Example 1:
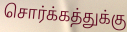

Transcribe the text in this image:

சொர்க்கத்துக்கு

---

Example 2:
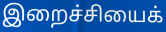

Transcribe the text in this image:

இறைச்சியைக்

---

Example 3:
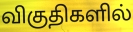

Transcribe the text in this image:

விகுதிகளில்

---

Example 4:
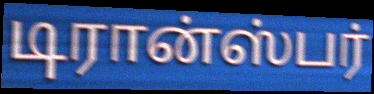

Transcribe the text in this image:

டிரான்ஸ்பர்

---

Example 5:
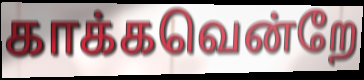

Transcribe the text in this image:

காக்கவென்றே